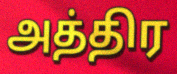
அத்திர